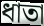
ধাতা